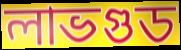
লাভগুড